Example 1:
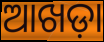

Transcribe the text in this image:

ଆଖଡ଼ା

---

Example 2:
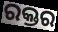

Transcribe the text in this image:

ରକ୍ତର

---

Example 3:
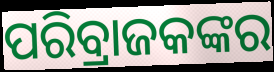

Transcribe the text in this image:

ପରିବ୍ରାଜକଙ୍କର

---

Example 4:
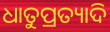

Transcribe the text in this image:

ଧାତୁପ୍ରତ୍ୟାଦି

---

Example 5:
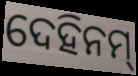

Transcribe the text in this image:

ଦେହିନମ୍